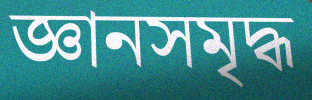
জ্ঞানসমৃদ্ধ